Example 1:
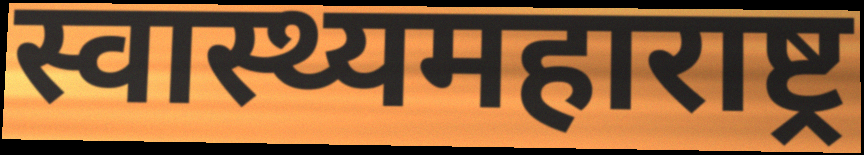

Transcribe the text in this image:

स्वास्थ्यमहाराष्ट्र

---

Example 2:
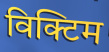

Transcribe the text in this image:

विक्टिम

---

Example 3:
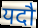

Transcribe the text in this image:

यदौ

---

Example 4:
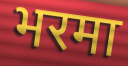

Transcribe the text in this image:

भरमा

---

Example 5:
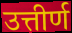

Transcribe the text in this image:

उत्तीर्ण